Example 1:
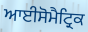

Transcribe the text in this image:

ਆਈਸੋਮੈਟ੍ਰਿਕ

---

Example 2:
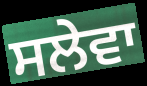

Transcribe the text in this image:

ਸਲੇਵਾ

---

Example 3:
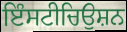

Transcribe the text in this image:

ਇੰਸਟੀਚਿਉਸ਼ਨ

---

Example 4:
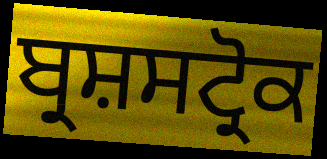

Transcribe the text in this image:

ਬ੍ਰਸ਼ਸਟ੍ਰੋਕ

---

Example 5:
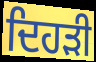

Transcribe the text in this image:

ਦਿਹੜੀ